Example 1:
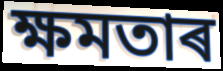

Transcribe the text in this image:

ক্ষমতাৰ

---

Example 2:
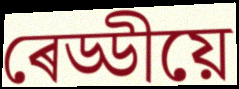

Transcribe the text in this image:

ৰেড্ডীয়ে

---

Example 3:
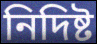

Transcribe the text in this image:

নিদিষ্ট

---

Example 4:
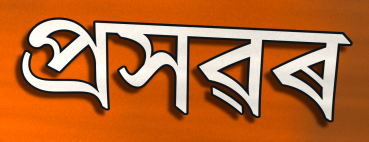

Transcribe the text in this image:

প্ৰসৱৰ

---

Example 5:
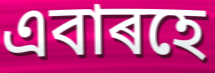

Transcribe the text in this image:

এবাৰহে